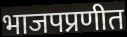
भाजपप्रणीत